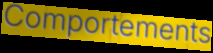
Comportements